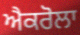
ਐਕਰੋਲਾ